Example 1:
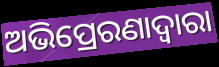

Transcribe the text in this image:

ଅଭିପ୍ରେରଣାଦ୍ୱାରା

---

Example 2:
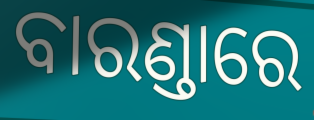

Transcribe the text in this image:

ବାରଣ୍ଡାରେ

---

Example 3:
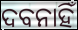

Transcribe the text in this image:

ଦବନାହିଁ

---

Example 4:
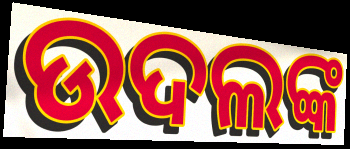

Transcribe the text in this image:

ଉଦଲଙ୍କ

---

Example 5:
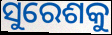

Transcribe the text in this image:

ସୁରେଶକୁ